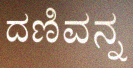
ದಣಿವನ್ನ